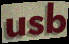
usb